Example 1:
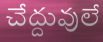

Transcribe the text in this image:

చేద్దువులే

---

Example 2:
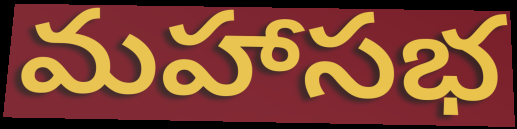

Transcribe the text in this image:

మహాసభ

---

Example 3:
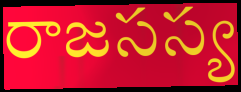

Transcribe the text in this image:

రాజసస్య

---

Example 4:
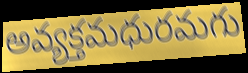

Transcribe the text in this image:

అవ్యక్తమధురమగు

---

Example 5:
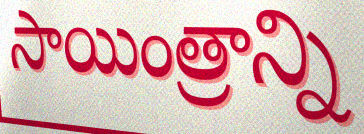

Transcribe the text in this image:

సాయింత్రాన్ని